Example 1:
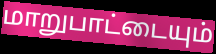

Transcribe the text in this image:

மாறுபாட்டையும்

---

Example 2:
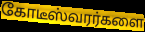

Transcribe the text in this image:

கோடீஸ்வரர்களை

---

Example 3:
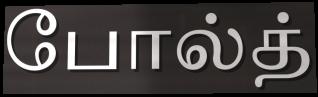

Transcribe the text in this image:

போல்த்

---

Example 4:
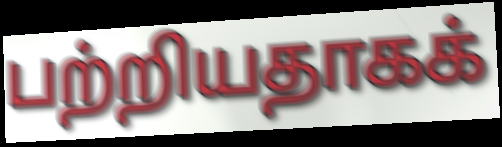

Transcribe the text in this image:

பற்றியதாகக்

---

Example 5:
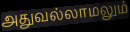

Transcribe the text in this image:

அதுவல்லாமலும்